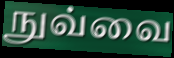
நுவ்வை